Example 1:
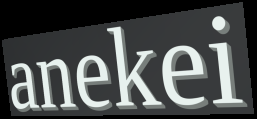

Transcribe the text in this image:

anekei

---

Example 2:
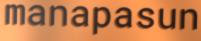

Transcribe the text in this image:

manapasun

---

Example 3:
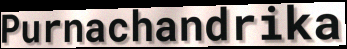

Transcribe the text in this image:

Purnachandrika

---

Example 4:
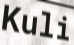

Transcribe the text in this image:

Kuli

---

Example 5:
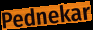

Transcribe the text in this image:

Pednekar